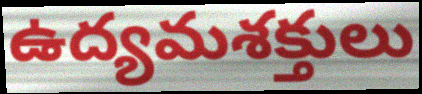
ఉద్యమశక్తులు